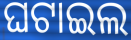
ଘଟାଇଲ